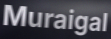
Muraigal